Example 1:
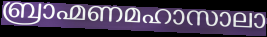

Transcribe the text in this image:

ബ്രാഹ്മണമഹാസാലാ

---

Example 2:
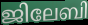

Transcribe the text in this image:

ജിലേബി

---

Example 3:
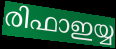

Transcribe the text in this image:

രിഫാഇയ്യ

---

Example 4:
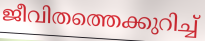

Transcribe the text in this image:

ജീവിതത്തെക്കുറിച്ച്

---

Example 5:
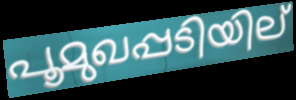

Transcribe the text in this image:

പൂമുഖപ്പടിയില്